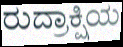
ರುದ್ರಾಕ್ಷಿಯ